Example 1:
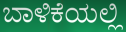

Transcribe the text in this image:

ಬಾಳಿಕೆಯಲ್ಲಿ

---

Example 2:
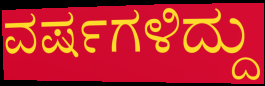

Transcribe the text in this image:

ವರ್ಷಗಳಿದ್ದು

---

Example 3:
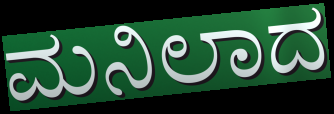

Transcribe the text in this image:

ಮನಿಲಾದ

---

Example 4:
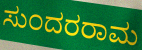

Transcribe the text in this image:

ಸುಂದರರಾಮ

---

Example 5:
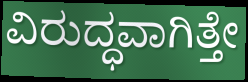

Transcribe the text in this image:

ವಿರುದ್ಧವಾಗಿತ್ತೇ